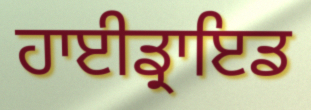
ਹਾਈਡ੍ਰਾਇਡ